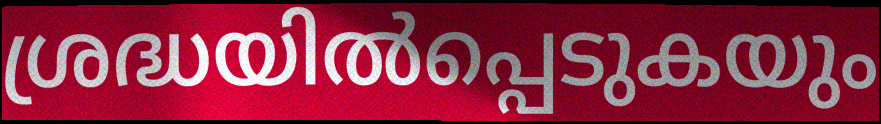
ശ്രദ്ധയിൽപ്പെടുകയും